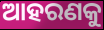
ଆହରଣକୁ